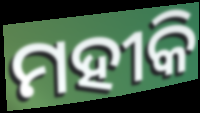
ମହୀକି